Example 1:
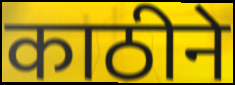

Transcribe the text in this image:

काठीने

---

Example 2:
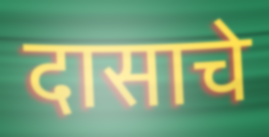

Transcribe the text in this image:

दासाचे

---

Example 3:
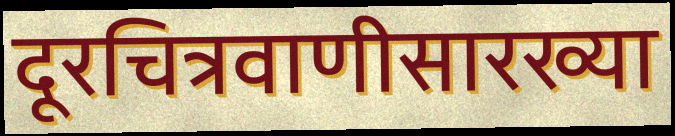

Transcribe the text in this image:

दूरचित्रवाणीसारख्या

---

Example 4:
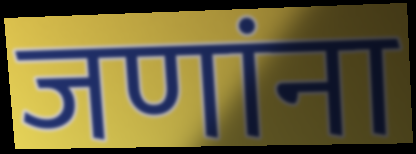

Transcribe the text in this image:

जणांना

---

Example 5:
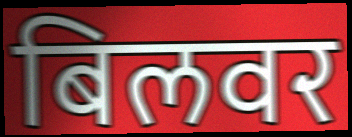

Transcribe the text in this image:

बिलवर